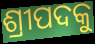
ଶ୍ରୀପଦକୁ